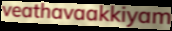
veathavaakkiyam